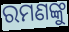
ରମଣଙ୍କୁ